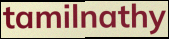
tamilnathy